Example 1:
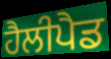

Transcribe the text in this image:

ਹੈਲੀਪੈਡ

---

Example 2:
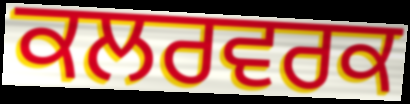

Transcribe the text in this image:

ਕਲਰਵਰਕ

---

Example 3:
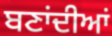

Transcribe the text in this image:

ਬਣਾਂਦੀਆਂ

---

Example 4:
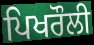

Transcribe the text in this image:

ਪਿਖਰੌਲੀ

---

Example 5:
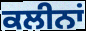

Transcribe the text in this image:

ਕਲੀਨਾਂ